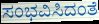
ಸಂಭವಿಸಿದಂತೆ